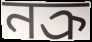
নক্র